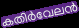
കതിർവേലൻ